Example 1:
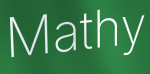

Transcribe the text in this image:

Mathy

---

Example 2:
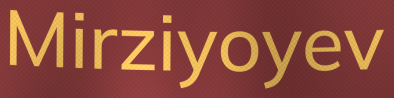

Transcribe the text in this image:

Mirziyoyev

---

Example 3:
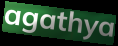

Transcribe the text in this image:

agathya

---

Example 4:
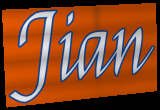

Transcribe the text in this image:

Jian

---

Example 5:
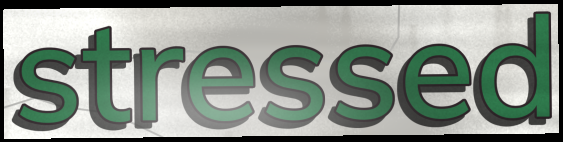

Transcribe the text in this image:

stressed